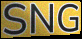
SNG